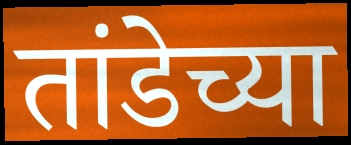
तांडेच्या